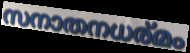
സനാതനധര്മം